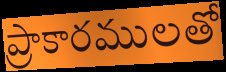
ప్రాకారములతో